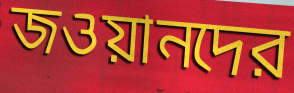
জওয়ানদের